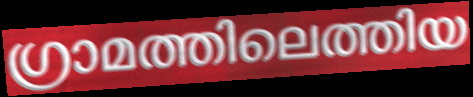
ഗ്രാമത്തിലെത്തിയ